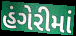
હંગેરીમાં